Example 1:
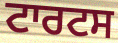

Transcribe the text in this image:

ਟਾਰਟਸ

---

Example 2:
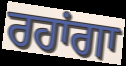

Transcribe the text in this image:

ਰਹਾਂਗਾ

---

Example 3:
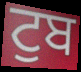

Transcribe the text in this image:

ਟੁਬ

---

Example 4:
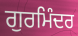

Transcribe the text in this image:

ਗੁਰਮਿੰਦਰ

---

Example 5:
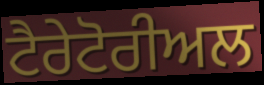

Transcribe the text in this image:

ਟੈਰੇਟੋਰੀਅਲ